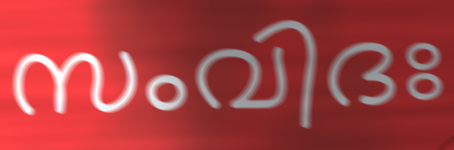
സംവിദഃ